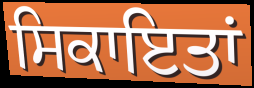
ਸਿਕਾਇਤਾਂ